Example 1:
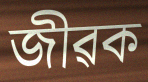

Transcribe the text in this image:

জীৱক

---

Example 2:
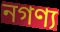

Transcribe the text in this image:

নগণ্য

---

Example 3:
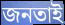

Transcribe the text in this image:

জনতাই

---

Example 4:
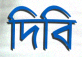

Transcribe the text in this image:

দিবি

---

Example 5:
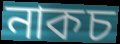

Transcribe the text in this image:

নাকচ